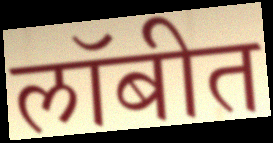
लॉबीत